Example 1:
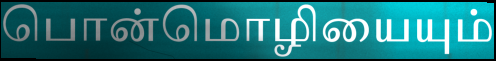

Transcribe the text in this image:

பொன்மொழியையும்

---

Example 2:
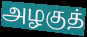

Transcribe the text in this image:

அழகுத்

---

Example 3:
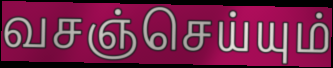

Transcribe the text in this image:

வசஞ்செய்யும்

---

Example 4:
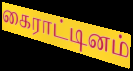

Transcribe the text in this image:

கைராட்டினம்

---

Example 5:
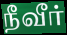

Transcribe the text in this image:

நீவீர்